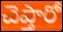
చెప్తారో